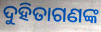
ଦୁହିତାଗଣଙ୍କ